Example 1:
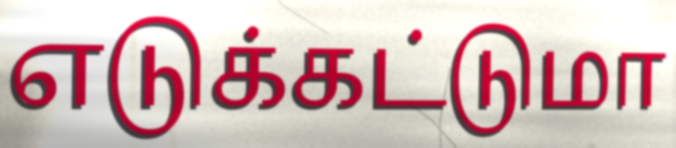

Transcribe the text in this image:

எடுக்கட்டுமா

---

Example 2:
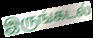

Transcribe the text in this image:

இருங்கடல்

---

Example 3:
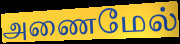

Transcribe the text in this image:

அணைமேல்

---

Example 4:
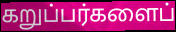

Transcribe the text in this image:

கறுப்பர்களைப்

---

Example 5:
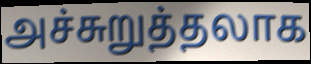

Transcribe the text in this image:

அச்சுறுத்தலாக